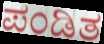
ಪಂಡಿತ